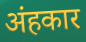
अंहकार